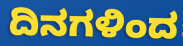
ದಿನಗಳಿಂದ